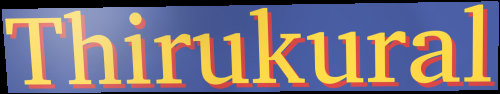
Thirukural